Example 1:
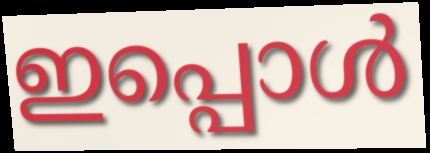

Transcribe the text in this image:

ഇപ്പൊൾ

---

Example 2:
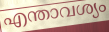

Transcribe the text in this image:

എന്താവശ്യം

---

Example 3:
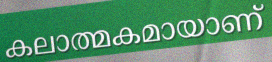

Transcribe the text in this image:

കലാത്മകമായാണ്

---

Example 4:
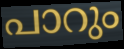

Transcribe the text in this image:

പാറും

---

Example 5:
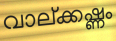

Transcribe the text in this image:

വാല്ക്കഷ്ണം